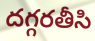
దగ్గరతీసి